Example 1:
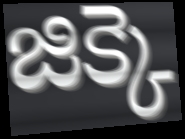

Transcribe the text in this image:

జిక్కె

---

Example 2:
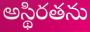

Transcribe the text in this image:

అస్థిరతను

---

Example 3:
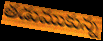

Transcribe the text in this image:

తడుముకున్న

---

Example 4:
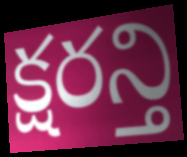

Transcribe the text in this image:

క్షరన్తి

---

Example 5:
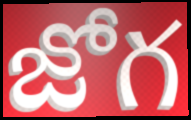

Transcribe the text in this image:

జోగ